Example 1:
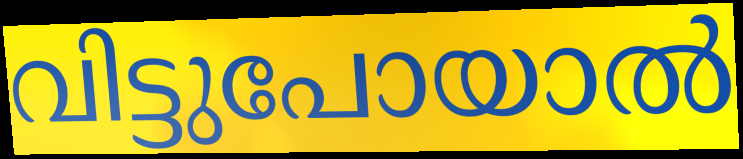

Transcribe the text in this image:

വിട്ടുപോയാൽ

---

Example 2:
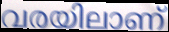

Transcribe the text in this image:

വരയിലാണ്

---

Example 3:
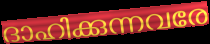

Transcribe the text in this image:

ദാഹിക്കുന്നവരേ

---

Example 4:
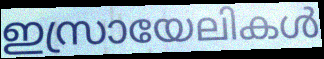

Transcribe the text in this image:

ഇസ്രായേലികൾ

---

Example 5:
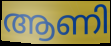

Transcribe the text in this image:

ആണി